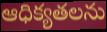
ఆధిక్యతలను